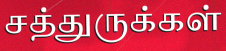
சத்துருக்கள்